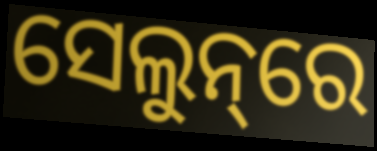
ସେଲୁନ୍‌ରେ